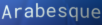
Arabesque